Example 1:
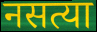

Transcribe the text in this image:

नसत्या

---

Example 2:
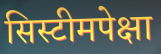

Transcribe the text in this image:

सिस्टीमपेक्षा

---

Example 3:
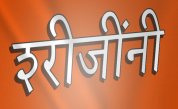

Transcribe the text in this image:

श्रीजींनी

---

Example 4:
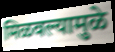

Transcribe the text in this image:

मिळवल्यामुळे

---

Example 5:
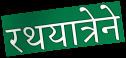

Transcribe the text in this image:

रथयात्रेने